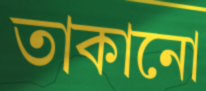
তাকানো